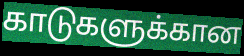
காடுகளுக்கான